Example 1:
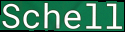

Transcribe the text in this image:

Schell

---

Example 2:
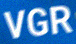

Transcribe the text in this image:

VGR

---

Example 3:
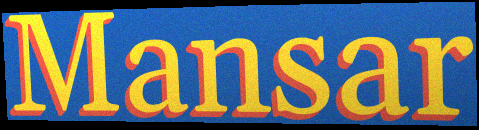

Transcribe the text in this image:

Mansar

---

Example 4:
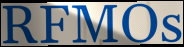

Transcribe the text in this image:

RFMOs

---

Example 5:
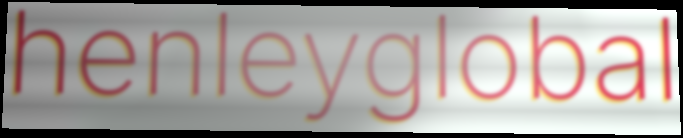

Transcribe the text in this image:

henleyglobal